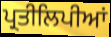
ਪ੍ਰਤੀਲਿਪੀਆਂ